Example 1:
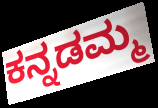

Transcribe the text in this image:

ಕನ್ನಡಮ್ಮ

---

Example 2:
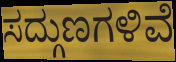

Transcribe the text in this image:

ಸದ್ಗುಣಗಳಿವೆ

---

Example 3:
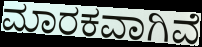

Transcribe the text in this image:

ಮಾರಕವಾಗಿವೆ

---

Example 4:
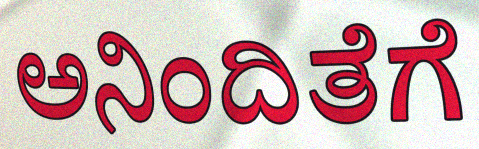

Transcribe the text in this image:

ಅನಿಂದಿತೆಗೆ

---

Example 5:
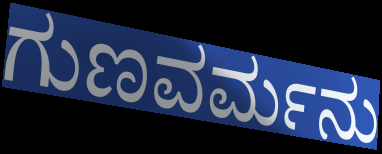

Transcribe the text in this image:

ಗುಣವರ್ಮನು